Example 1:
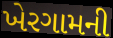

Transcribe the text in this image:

ખેરગામની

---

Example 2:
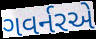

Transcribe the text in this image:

ગવર્નરએ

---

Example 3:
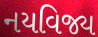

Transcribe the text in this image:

નયવિજ્ય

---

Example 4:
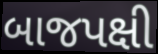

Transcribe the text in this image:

બાજપક્ષી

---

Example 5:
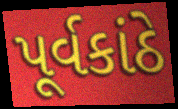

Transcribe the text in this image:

પૂર્વકાંઠે